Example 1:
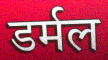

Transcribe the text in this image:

डर्मल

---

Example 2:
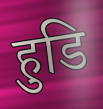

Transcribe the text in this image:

हुडि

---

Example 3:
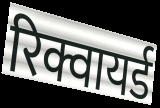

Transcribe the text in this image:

रिक्वायर्ड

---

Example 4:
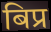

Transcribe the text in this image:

बिप्र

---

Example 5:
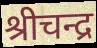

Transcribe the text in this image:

श्रीचन्द्र